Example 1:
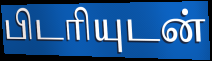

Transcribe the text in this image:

பிடரியுடன்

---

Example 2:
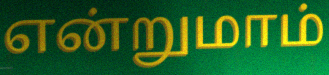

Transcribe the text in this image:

என்றுமாம்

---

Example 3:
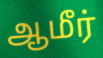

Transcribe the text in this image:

ஆமீர்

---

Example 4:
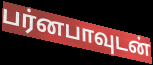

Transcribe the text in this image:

பர்னபாவுடன்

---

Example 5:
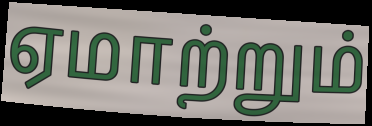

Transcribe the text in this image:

ஏமாற்றும்